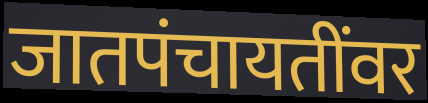
जातपंचायतींवर